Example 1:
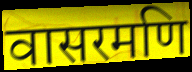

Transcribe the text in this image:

वासरमणि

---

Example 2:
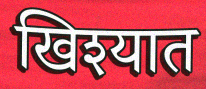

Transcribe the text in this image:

खिश्यात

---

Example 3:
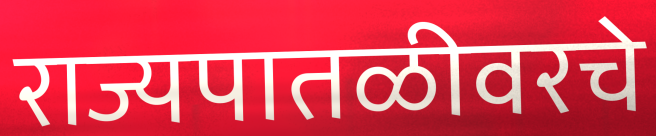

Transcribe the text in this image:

राज्यपातळीवरचे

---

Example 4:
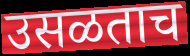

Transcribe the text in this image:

उसळताच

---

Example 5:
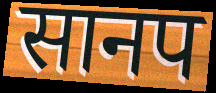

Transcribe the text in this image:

सानप